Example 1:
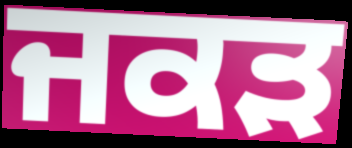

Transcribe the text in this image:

ਜਕੜ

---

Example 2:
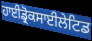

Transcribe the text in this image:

ਹਾਈਡ੍ਰੋਕਸਾਈਲੇਟਿਡ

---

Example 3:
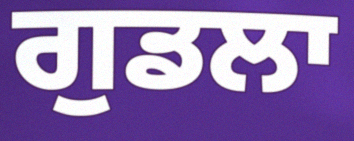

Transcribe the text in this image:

ਗੁਡਲਾ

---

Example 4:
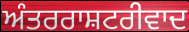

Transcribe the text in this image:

ਅੰਤਰਰਾਸ਼ਟਰੀਵਾਦ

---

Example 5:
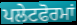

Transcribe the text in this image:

ਪਲੇਟਫੋਰਮਾਂ